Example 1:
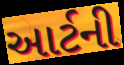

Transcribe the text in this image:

આર્ટની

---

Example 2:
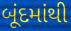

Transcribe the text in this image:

બૂંદમાંથી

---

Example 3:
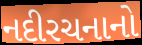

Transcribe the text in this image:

નદીરચનાનો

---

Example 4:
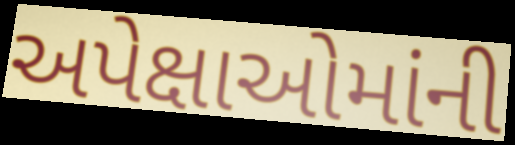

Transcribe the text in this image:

અપેક્ષાઓમાંની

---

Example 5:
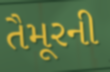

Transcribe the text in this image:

તૈમૂરની